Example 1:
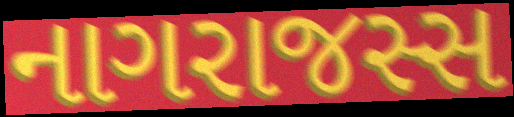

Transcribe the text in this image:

નાગરાજસ્સ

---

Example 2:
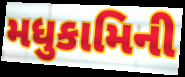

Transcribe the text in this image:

મધુકામિની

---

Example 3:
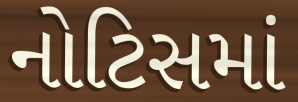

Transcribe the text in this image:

નોટિસમાં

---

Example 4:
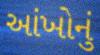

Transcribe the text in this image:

આંખોનું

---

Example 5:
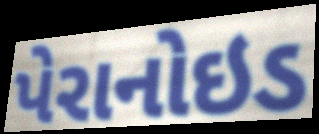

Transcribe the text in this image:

પેરાનોઇડ